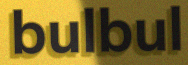
bulbul